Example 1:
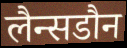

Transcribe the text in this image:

लैन्सडौन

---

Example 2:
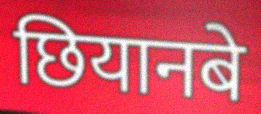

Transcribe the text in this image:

छियानबे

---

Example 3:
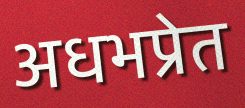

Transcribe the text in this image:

अधभप्रेत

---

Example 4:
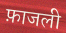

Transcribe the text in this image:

फ़ाजली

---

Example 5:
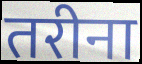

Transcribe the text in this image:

तरीना